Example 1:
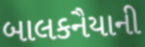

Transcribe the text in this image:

બાલકનૈયાની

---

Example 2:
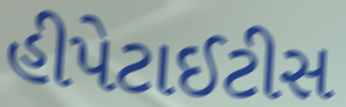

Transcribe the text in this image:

હીપેટાઈટીસ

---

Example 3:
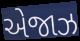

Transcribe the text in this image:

એજાઝ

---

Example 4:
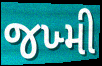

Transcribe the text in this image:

જખ્મી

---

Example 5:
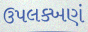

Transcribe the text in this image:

ઉપલક્ખણં